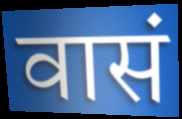
वासं